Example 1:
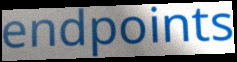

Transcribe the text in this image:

endpoints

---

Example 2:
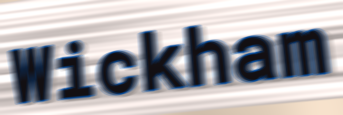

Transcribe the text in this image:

Wickham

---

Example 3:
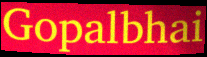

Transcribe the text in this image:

Gopalbhai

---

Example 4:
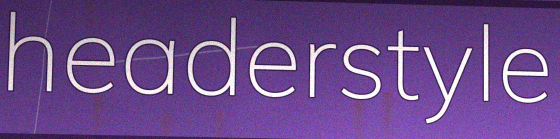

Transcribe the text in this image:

headerstyle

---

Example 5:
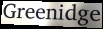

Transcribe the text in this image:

Greenidge